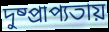
দুষ্প্রাপ্যতায়